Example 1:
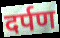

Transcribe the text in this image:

दर्पण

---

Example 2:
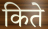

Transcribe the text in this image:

किते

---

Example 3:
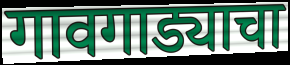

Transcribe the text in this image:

गावगाड्याचा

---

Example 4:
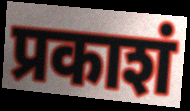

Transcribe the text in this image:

प्रकाशं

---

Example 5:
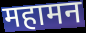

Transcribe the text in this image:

महामन